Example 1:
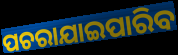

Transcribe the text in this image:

ପଚରାଯାଇପାରିବ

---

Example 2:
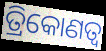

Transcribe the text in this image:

ତ୍ରିକୋଣତ୍ଵ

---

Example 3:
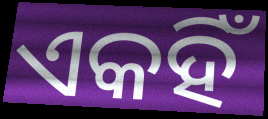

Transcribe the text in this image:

ଏକହିଁ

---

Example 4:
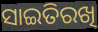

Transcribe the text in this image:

ସାଇତିରଖି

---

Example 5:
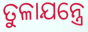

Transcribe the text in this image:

ତୁଳାଯନ୍ତ୍ରେ